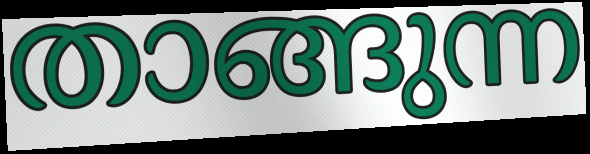
താങ്ങുന്ന